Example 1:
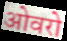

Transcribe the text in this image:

ओवरो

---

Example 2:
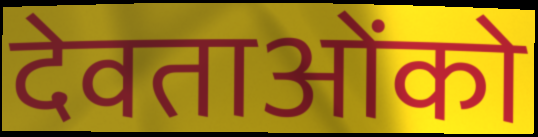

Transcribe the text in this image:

देवताओंको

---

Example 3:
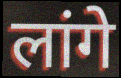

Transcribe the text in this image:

लांगे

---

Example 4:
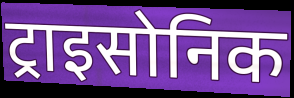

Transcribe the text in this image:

ट्राइसोनिक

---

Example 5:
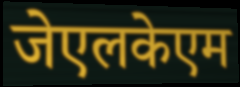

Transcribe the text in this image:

जेएलकेएम